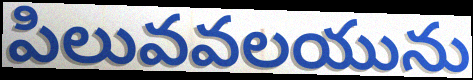
పిలువవలయును